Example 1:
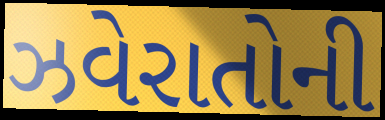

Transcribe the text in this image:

ઝવેરાતોની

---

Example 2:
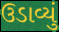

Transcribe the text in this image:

ઉડાવ્યું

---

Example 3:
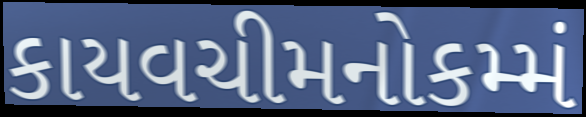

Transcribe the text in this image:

કાયવચીમનોકમ્મં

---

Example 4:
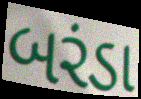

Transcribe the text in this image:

બરંડા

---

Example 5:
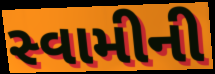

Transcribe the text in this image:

સ્વામીની